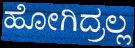
ಹೋಗಿದ್ರಲ್ಲ